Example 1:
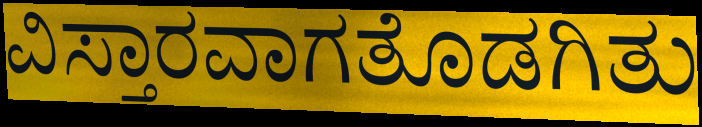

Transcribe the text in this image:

ವಿಸ್ತಾರವಾಗತೊಡಗಿತು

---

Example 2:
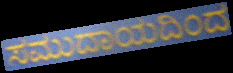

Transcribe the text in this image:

ಸಮುದಾಯದಿಂದ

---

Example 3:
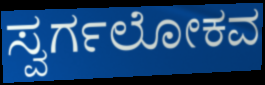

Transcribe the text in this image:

ಸ್ವರ್ಗಲೋಕವ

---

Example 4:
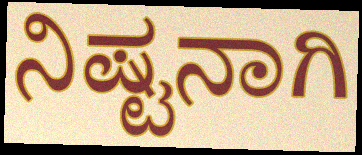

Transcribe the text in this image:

ನಿಷ್ಟನಾಗಿ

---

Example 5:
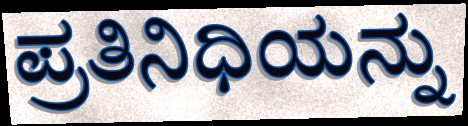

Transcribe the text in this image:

ಪ್ರತಿನಿಧಿಯನ್ನು